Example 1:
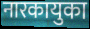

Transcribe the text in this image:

नारकायुका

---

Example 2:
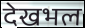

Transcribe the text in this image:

देखभल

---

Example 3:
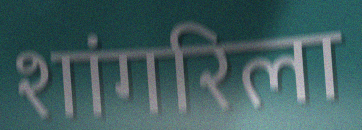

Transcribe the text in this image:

शांगरिला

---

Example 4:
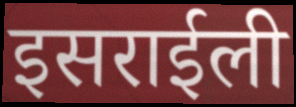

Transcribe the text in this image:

इसराईली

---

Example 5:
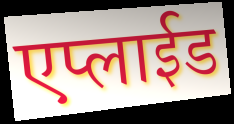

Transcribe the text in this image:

एप्लाईड